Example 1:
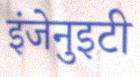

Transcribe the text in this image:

इंजेनुइटी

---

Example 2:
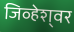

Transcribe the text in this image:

जिव्हेश्वर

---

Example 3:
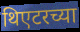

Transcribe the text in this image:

थिएटरच्या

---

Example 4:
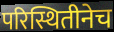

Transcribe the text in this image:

परिस्थितीनेच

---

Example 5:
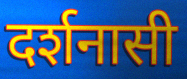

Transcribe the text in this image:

दर्शनासी